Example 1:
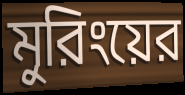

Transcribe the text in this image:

মুরিংয়ের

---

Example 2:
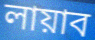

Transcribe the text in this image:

লায়াব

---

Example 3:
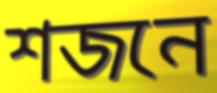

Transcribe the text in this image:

শজনে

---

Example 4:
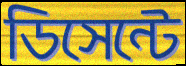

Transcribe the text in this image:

ডিসেন্টে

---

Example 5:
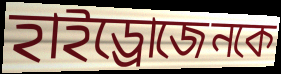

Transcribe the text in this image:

হাইড্রোজেনকে